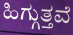
ಹಿಗ್ಗುತ್ತವೆ